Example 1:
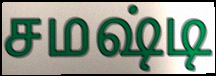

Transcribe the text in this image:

சமஷ்டி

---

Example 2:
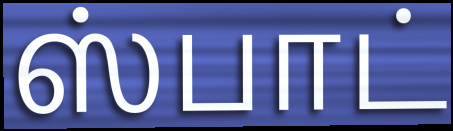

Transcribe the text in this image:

ஸ்பாட்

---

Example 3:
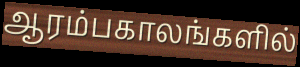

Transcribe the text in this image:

ஆரம்பகாலங்களில்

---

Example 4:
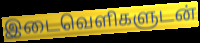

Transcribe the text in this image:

இடைவெளிகளுடன்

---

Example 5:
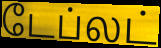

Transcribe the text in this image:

டேப்லட்